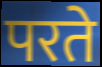
परते